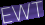
EWT